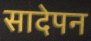
सादेपन